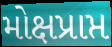
મોક્ષપ્રાપ્ત